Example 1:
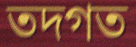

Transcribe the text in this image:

তদগত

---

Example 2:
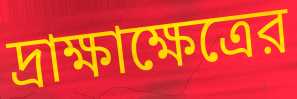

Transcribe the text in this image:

দ্রাক্ষাক্ষেত্রের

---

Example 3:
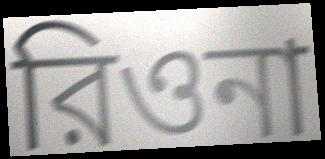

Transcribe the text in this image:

রিওনা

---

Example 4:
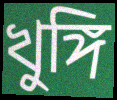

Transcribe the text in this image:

খুঙ্গি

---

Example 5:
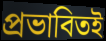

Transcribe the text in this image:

প্রভাবিতই